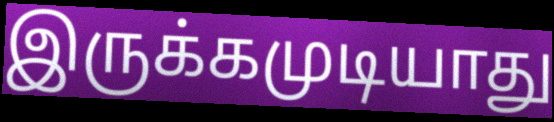
இருக்கமுடியாது